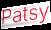
Patsy